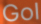
Gol